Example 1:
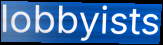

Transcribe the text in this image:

lobbyists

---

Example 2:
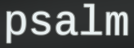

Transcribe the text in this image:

psalm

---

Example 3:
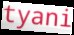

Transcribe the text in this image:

tyani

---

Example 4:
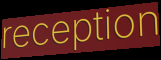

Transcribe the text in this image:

reception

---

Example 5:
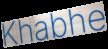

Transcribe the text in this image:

Khabhe